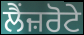
ਲੈਂਜ਼ਰੋਟੇ